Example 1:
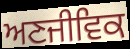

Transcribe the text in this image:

ਅਣਜੀਵਿਕ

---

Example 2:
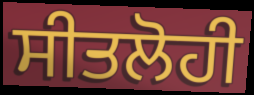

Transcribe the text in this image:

ਸੀਤਲੋਹੀ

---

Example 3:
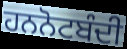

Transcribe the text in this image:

ਹਨਨੋਟਬੰਦੀ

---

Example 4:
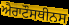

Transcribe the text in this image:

ਐਰਾਟੌਸਥੀਨਸ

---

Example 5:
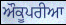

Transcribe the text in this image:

ਔਕੂਪਰੀਆ